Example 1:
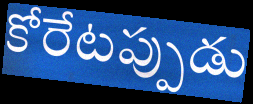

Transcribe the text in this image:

కోరేటప్పుడు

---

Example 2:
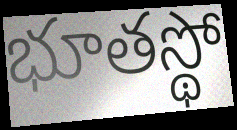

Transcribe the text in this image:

భూతస్థో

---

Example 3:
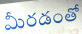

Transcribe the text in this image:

మీరడంతో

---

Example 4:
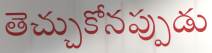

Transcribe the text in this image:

తెచ్చుకోనప్పుడు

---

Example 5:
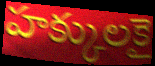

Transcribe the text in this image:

హక్కులకై